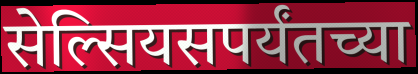
सेल्सियसपर्यंतच्या